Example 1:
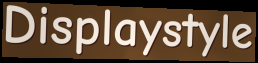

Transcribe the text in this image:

Displaystyle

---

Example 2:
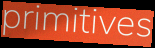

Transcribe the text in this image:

primitives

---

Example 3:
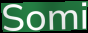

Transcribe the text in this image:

Somi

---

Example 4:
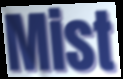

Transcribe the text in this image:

Mist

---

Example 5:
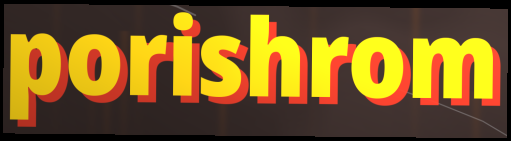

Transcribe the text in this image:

porishrom